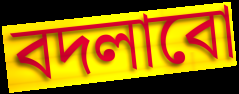
বদলাবো